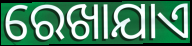
ରେଖାଯାଏ